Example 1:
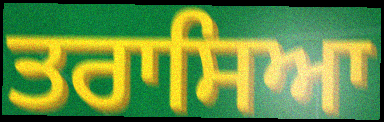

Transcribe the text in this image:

ਤਰਾਸਿਆ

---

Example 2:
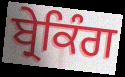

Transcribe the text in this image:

ਬ੍ਰੇਕਿੰਗ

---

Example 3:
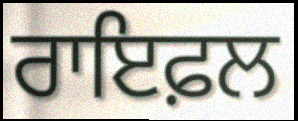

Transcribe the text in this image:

ਰਾਇਫ਼ਲ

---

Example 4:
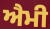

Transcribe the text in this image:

ਐਮੀ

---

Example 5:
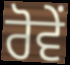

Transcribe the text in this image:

ਰੋਵੇਂ